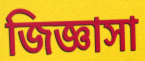
জিজ্ঞাসা